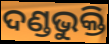
ଦଣ୍ଡଭୁକ୍ତି